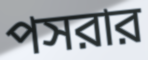
পসরার